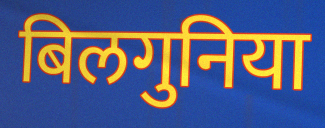
बिलगुनिया